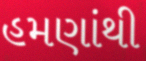
હમણાંથી